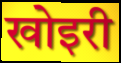
खोइरी